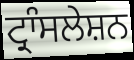
ਟ੍ਰਾੰਸਲੇਸ਼ਨ